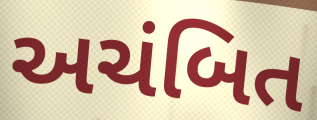
અચંબિત